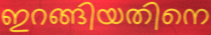
ഇറങ്ങിയതിനെ